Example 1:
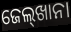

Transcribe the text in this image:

ଜେଲ୍‌ଖାନା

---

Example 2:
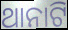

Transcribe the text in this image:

ଥାନାଟି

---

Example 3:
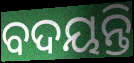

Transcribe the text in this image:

ବଦୟନ୍ତି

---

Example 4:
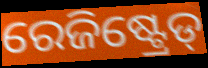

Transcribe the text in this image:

ରେଜିଷ୍ଟ୍ରେଡ୍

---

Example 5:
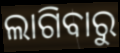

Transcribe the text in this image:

ଲାଗିବାରୁ